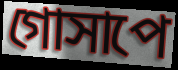
গোসাপে